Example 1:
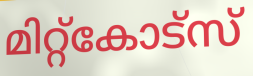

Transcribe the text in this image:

മിറ്റ്കോട്സ്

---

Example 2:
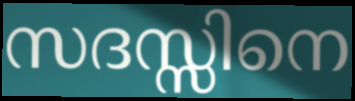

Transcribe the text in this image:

സദസ്സിനെ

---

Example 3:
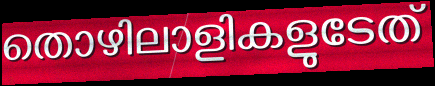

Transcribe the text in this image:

തൊഴിലാളികളുടേത്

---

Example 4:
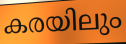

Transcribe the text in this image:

കരയിലും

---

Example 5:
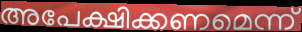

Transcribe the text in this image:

അപേക്ഷിക്കണമെന്ന്